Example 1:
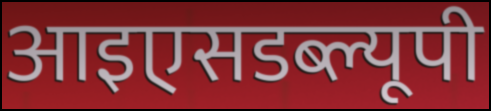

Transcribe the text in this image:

आइएसडब्ल्यूपी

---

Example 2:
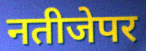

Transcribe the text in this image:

नतीजेपर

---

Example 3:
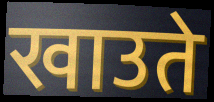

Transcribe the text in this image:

खाउते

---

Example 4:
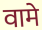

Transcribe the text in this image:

वामे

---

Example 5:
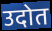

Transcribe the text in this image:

उदोत